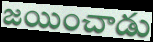
జయించాడు